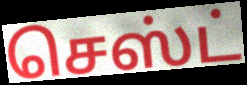
செஸ்ட்